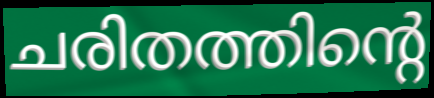
ചരിതത്തിന്റെ